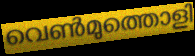
വെൺമുത്തൊളി